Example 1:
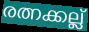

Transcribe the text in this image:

രത്നക്കല്ല്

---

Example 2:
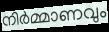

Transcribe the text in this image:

നിർമ്മാണവും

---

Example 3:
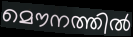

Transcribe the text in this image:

മൌനത്തിൽ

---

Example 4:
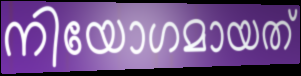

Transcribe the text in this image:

നിയോഗമായത്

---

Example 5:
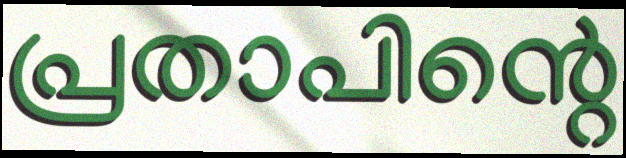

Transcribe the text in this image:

പ്രതാപിന്റെ